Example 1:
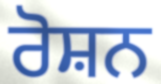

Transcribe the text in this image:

ਰੋਸ਼ਨ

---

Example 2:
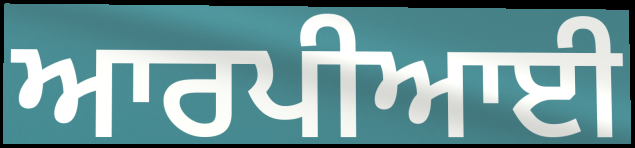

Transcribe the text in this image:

ਆਰਪੀਆਈ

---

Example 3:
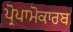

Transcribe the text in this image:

ਪ੍ਰੋਪਾਮੋਕਾਰਬ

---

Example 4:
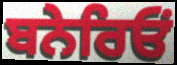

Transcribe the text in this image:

ਬਨੇਰਿਓਂ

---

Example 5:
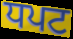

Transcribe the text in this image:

ਧਪਟ